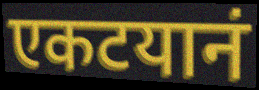
एकटयानं